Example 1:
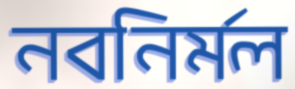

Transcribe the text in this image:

নবনির্মল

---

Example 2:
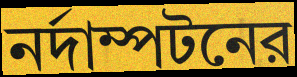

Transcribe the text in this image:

নর্দাম্পটনের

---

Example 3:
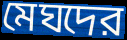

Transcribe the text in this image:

মেঘদের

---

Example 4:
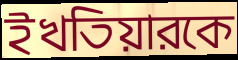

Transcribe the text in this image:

ইখতিয়ারকে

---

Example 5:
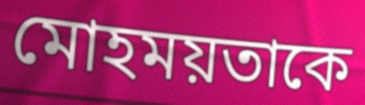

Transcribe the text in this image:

মোহময়তাকে